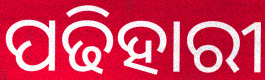
ପଢିହାରୀ